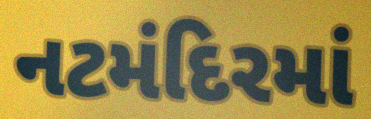
નટમંદિરમાં